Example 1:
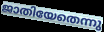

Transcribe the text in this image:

ജാതിയേതെന്നു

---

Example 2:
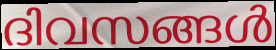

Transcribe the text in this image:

ദിവസങ്ങൾ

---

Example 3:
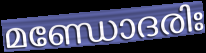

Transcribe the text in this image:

മണ്ഡോദരിഃ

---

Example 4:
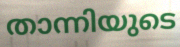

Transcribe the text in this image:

താന്നിയുടെ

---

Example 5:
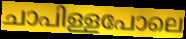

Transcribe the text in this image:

ചാപിള്ളപോലെ